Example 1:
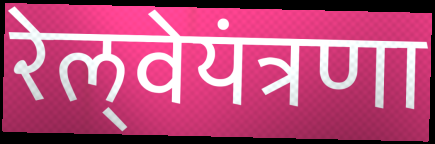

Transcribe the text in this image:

रेल्वेयंत्रणा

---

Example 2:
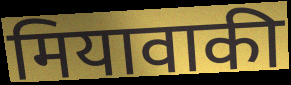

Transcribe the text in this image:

मियावाकी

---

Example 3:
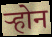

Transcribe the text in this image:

र्‍होन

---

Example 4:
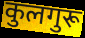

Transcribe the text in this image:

कुलगुरू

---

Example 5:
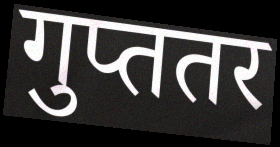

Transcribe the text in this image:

गुप्ततर